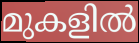
മുകളിൽ